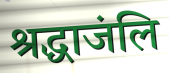
श्रद्धाजंलि